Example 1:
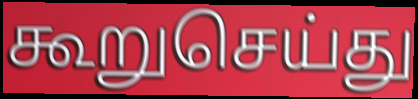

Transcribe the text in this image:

கூறுசெய்து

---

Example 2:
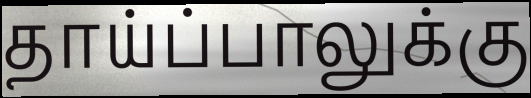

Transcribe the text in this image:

தாய்ப்பாலுக்கு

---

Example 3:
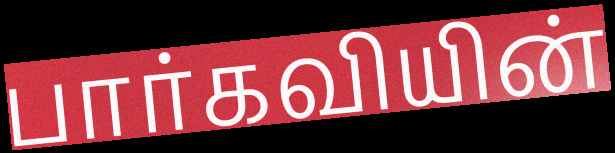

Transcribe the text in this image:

பார்கவியின்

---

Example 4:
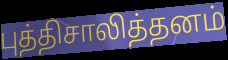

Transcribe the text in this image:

புத்திசாலித்தனம்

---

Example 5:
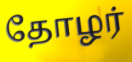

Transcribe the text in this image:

தோழர்